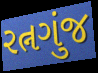
રત્નગુંજ